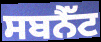
ਸਬਨੈੱਟ